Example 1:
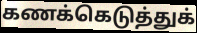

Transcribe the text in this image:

கணக்கெடுத்துக்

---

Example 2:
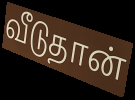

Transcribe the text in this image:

வீடுதான்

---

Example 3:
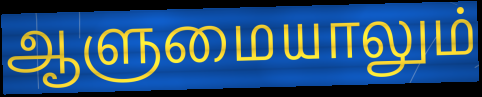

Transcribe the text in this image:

ஆளுமையாலும்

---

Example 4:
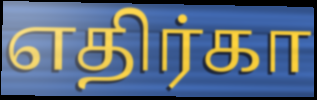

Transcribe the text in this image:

எதிர்கா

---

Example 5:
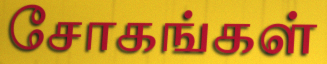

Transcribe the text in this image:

சோகங்கள்